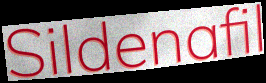
Sildenafil